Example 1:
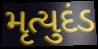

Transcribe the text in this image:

મૃત્યુદંડ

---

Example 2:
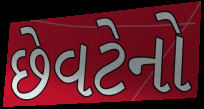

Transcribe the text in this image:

છેવટેનો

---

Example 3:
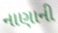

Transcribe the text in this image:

નાણાની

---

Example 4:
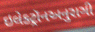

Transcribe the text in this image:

ઇલેક્ટ્રૉનઅનુરાગી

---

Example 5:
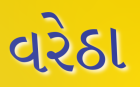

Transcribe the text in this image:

વરેઠા